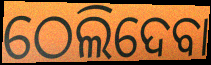
ଠେଲିଦେବା